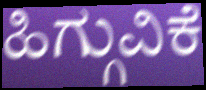
ಹಿಗ್ಗುವಿಕೆ